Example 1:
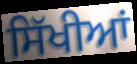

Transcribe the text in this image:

ਸਿੱਖੀਆਂ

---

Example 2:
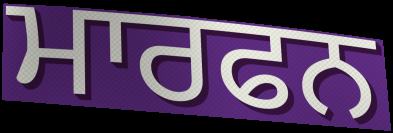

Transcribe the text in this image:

ਮਾਰਫਨ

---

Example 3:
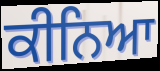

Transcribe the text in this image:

ਕੀਨਿਆ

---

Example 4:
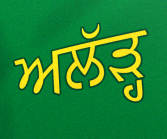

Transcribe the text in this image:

ਅਲੱੜ੍ਹ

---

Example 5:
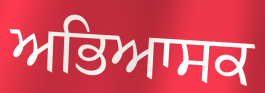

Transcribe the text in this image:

ਅਭਿਆਸਕ